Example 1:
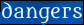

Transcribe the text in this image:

dangers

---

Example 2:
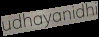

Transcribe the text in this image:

udhayanidhi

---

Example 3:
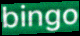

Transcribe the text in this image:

bingo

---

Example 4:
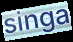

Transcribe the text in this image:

singa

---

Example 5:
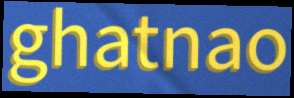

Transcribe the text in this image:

ghatnao